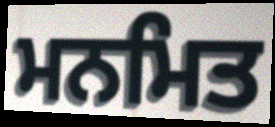
ਮਨਮਿਤ